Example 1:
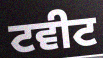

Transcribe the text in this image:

ਟਵੀਟ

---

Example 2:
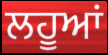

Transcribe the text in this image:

ਲਹੂਆਂ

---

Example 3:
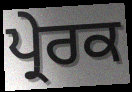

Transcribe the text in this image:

ਪ੍ਰੇਰਕ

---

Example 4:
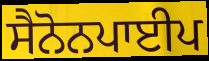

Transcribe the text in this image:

ਸੈਨੋਨਪਾਈਪ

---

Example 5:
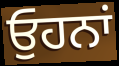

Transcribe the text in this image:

ਓੁਹਨਾਂ